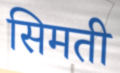
सिमती